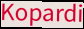
Kopardi